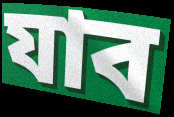
যাব